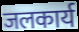
जलकार्य